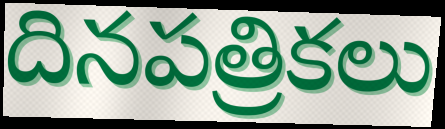
దినపత్రికలు